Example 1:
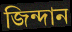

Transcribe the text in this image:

জিন্দান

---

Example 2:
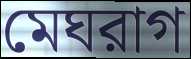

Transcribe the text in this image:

মেঘরাগ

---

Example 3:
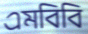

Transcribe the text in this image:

এমবিবি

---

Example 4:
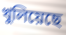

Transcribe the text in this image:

খুলিয়েছে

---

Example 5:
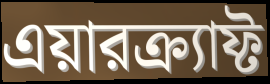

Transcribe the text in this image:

এয়ারক্র্যাফ্ট